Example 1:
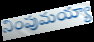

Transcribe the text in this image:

నింపుమయ్యా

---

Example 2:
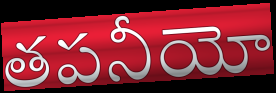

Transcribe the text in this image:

తపనీయో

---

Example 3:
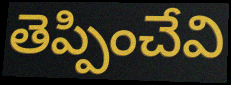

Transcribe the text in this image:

తెప్పించేవి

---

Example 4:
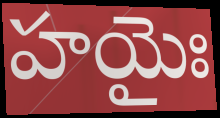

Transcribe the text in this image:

హయైః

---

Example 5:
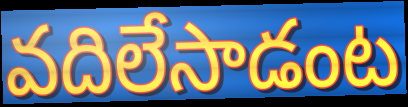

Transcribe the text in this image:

వదిలేసాడంట